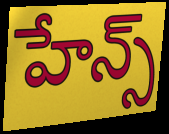
హేన్స్